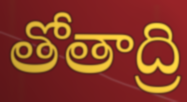
తోతాద్రి